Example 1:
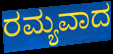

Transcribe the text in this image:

ರಮ್ಯವಾದ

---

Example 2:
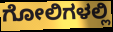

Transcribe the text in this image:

ಗೋಲಿಗಳಲ್ಲಿ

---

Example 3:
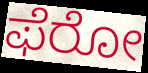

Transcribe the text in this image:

ಫೆರೋ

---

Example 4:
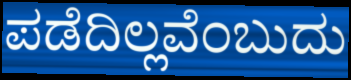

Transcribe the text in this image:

ಪಡೆದಿಲ್ಲವೆಂಬುದು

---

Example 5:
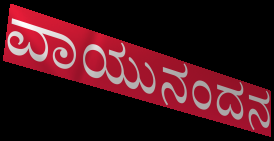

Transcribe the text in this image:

ವಾಯುನಂದನ